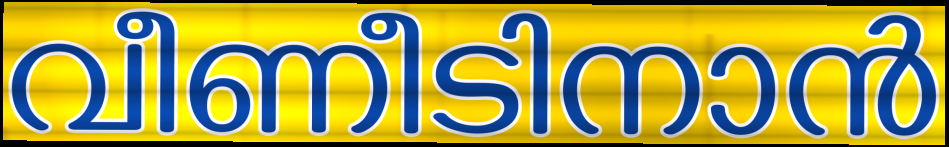
വീണീടിനാൻ